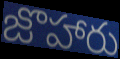
జొహారు